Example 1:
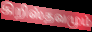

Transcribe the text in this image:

கிறிஸ்தவமும்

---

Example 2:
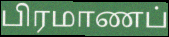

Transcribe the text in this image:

பிரமாணப்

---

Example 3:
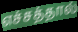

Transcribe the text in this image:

எச்சத்தால்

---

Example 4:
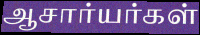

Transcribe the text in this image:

ஆசார்யர்கள்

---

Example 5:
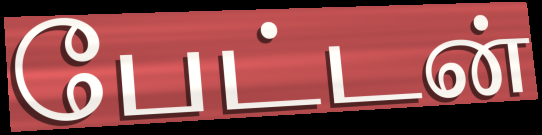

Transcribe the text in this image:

பேட்டன்